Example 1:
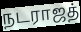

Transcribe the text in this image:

நடராஜத்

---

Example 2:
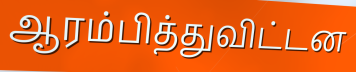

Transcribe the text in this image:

ஆரம்பித்துவிட்டன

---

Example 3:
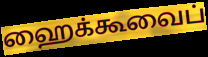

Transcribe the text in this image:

ஹைக்கூவைப்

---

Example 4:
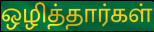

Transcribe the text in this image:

ஒழித்தார்கள்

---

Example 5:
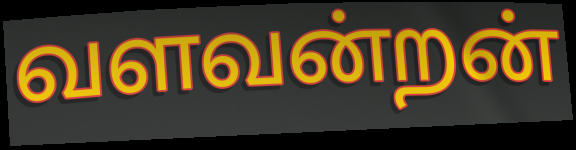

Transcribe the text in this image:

வளவன்றன்